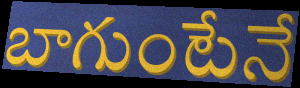
బాగుంటేనే